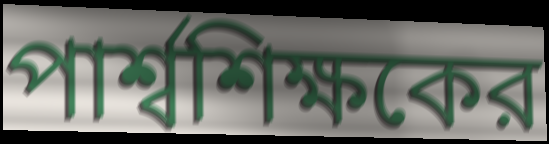
পার্শ্বশিক্ষকের